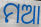
ମଆ